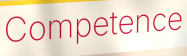
Competence